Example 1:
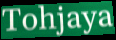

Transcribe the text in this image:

Tohjaya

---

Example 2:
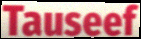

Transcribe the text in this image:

Tauseef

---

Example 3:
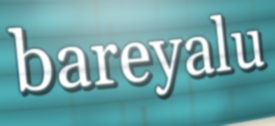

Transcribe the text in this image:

bareyalu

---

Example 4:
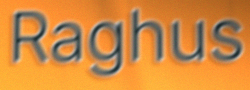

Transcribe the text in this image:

Raghus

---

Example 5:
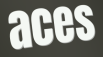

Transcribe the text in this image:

aces